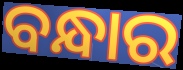
ବନ୍ଧାର